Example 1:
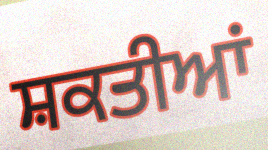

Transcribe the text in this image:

ਸ਼ਕਤੀਆਂ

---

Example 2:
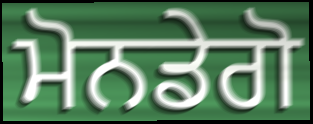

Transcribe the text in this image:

ਮੋਨਡੇਗੋ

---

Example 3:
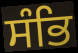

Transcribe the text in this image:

ਸੰਭਿ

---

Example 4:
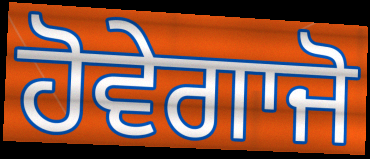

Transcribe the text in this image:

ਹੋਵੇਗਾਜੋ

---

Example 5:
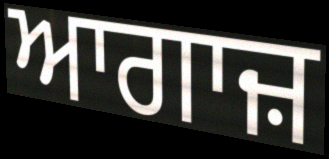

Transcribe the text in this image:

ਆਗਾਜ਼